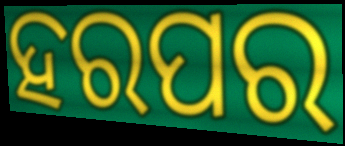
ହରପର